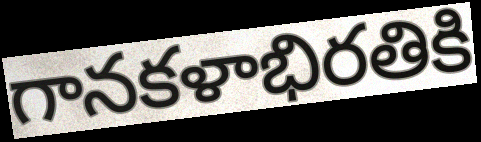
గానకళాభిరతికి